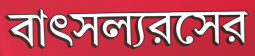
বাৎসল্যরসের